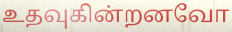
உதவுகின்றனவோ